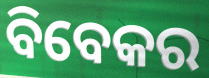
ବିବେକର